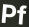
Pf